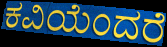
ಕವಿಯೆಂದರೆ